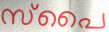
സ്പൈ